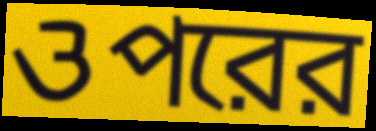
ওপরের